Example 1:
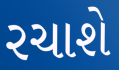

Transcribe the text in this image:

રચાશે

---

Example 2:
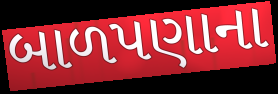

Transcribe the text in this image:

બાળપણાના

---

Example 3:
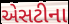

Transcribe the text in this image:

એસટીના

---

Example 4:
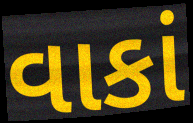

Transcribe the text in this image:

વાકાં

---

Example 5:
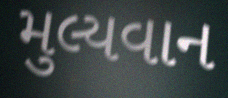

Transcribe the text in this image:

મુલ્યવાન